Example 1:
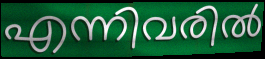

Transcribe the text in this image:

എന്നിവരിൽ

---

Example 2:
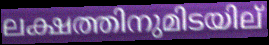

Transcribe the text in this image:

ലക്ഷത്തിനുമിടയില്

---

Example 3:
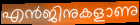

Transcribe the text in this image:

എൻജിനുകളാണു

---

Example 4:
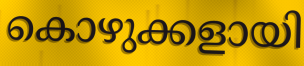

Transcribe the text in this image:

കൊഴുക്കളായി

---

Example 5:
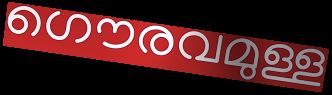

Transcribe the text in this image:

ഗൌരവമുള്ള